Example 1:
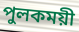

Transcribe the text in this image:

পুলকময়ী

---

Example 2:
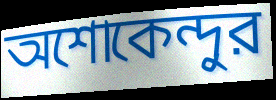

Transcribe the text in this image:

অশোকেন্দুর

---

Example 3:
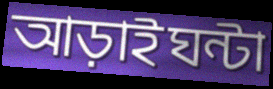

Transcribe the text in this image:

আড়াইঘন্টা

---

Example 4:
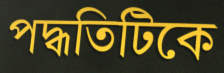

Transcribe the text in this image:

পদ্ধতিটিকে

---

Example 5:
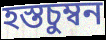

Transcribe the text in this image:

হস্তচুম্বন